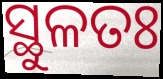
ସ୍ଥୁଳତଃ